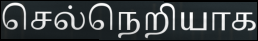
செல்நெறியாக